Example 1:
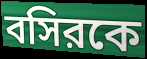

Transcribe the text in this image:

বসিরকে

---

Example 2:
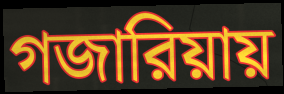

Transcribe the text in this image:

গজারিয়ায়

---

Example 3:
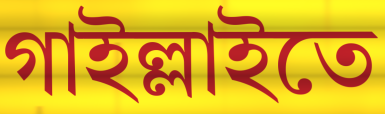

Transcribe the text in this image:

গাইল্লাইতে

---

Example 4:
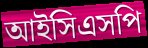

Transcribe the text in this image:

আইসিএসপি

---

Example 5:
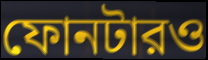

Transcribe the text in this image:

ফোনটারও